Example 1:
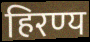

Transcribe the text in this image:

हिरण्य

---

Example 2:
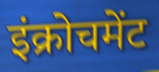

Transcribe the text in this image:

इंक्रोचमेंट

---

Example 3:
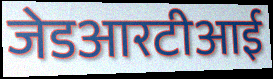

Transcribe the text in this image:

जेडआरटीआई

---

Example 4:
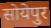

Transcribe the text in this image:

सोयेपुर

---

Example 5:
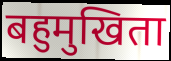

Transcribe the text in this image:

बहुमुखिता